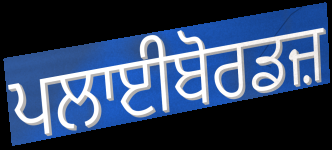
ਪਲਾਈਬੋਰਡਜ਼